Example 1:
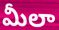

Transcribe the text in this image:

మీలా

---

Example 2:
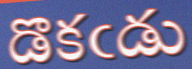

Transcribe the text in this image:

డొకఁడు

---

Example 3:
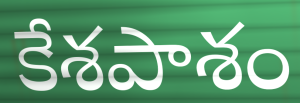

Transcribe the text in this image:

కేశపాశం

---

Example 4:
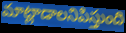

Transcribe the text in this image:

మాట్లాడాలనిపిస్తుంది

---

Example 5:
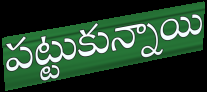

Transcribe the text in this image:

పట్టుకున్నాయి